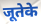
जूतेके